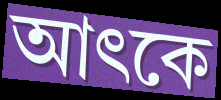
আৎকে